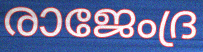
രാജേംദ്ര